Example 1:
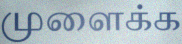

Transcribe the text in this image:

முளைக்க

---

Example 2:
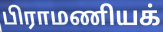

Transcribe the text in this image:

பிராமணியக்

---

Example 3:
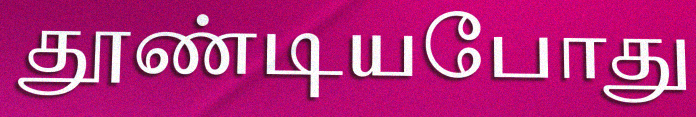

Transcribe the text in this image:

தூண்டியபோது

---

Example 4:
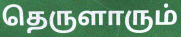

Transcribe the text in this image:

தெருளாரும்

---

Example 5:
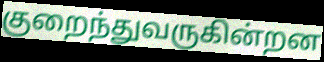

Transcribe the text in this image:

குறைந்துவருகின்றன